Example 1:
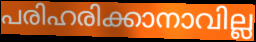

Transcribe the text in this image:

പരിഹരിക്കാനാവില്ല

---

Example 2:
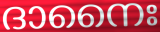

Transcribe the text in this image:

ദാനൈഃ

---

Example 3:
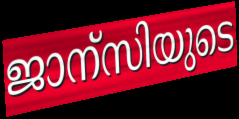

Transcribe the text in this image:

ജാന്സിയുടെ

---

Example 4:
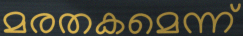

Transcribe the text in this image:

മരതകമെന്ന്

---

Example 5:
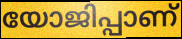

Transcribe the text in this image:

യോജിപ്പാണ്